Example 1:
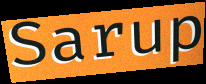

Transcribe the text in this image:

Sarup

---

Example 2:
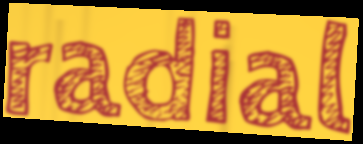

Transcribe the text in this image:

radial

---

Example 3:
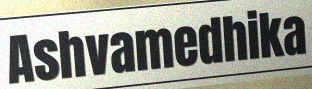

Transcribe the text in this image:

Ashvamedhika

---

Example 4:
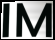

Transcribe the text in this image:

IM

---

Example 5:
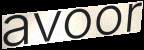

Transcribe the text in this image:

avoor